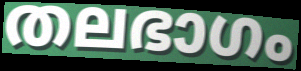
തലഭാഗം